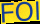
FOI